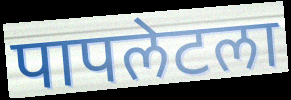
पापलेटला